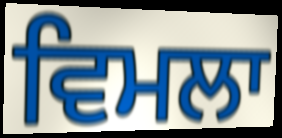
ਵਿਮਲਾ